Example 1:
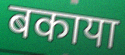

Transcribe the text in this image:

बकाया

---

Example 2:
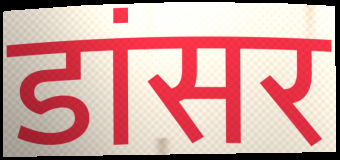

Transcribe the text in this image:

डांसर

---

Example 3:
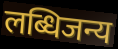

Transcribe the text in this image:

लब्धिजन्य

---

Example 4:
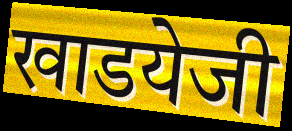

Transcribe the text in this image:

खाडयेजी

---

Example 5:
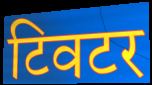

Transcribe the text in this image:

टिवटर